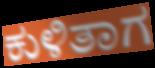
ಕುಳಿತಾಗ